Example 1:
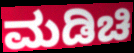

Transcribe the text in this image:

ಮಡಿಚಿ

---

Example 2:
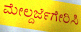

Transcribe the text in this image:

ಮೇಲ್ದರ್ಜೆಗೇರಿಸಿ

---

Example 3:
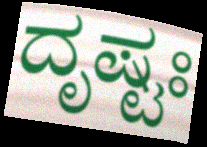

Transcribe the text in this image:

ದೃಷ್ಟಃ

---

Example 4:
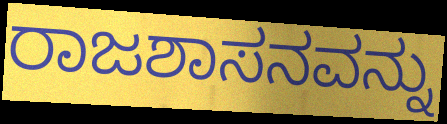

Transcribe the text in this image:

ರಾಜಶಾಸನವನ್ನು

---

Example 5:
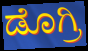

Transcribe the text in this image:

ಡೊಗ್ರಿ